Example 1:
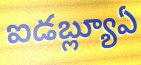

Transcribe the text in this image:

ఐడబ్ల్యూఏ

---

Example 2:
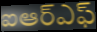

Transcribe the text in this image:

ఐఆర్ఎఫ్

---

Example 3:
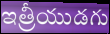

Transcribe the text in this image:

ఇత్రీయుడగు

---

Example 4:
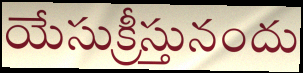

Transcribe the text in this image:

యేసుక్రీస్తునందు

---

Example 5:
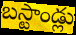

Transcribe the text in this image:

బస్టాండ్లు